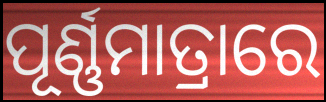
ପୂର୍ଣ୍ଣମାତ୍ରାରେ